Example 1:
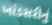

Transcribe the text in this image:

ખાંડસરીનું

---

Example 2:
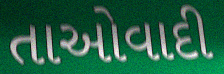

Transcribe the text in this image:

તાઓવાદી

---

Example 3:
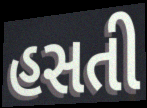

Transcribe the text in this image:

હસતી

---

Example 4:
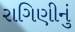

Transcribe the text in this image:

રાગિણીનું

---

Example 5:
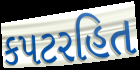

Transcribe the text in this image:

કપટરહિત